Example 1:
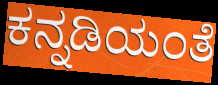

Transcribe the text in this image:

ಕನ್ನಡಿಯಂತೆ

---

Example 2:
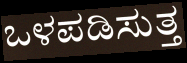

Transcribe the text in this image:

ಒಳಪಡಿಸುತ್ತ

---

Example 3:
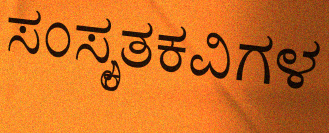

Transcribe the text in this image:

ಸಂಸ್ಕೃತಕವಿಗಳ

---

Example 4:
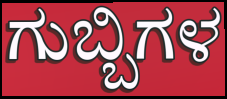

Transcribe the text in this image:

ಗುಬ್ಬಿಗಳ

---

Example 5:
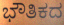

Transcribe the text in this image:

ಭೌತಿಕದ